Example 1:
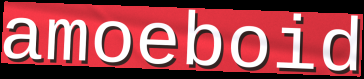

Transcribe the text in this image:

amoeboid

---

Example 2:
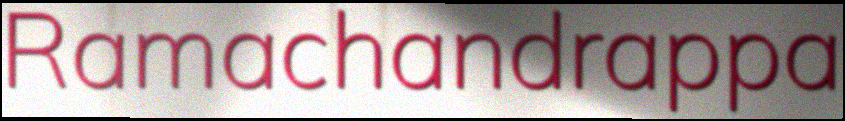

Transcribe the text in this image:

Ramachandrappa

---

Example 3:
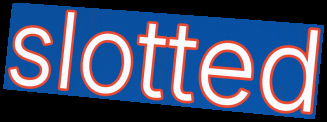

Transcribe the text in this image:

slotted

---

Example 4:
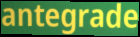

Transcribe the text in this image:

antegrade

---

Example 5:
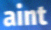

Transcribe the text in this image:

aint